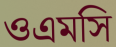
ওএমসি